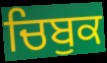
ਚਿਬੁਕ